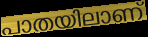
പാതയിലാണ്